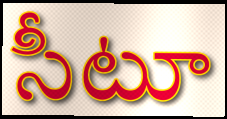
సీటూ